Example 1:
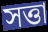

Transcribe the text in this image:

সত্তা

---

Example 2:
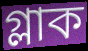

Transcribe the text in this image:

গ্লাক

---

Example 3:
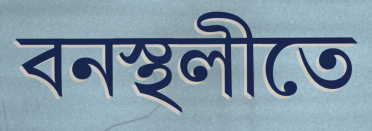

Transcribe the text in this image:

বনস্থলীতে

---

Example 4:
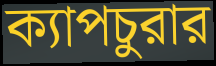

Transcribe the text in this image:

ক্যাপচুরার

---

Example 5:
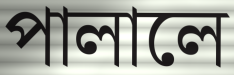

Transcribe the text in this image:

পালালে